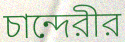
চান্দেরীর